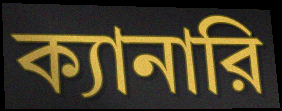
ক্যানারি